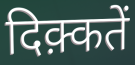
दिक़्कतें